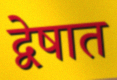
द्वेषात